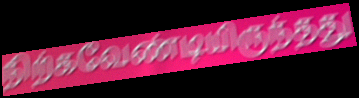
நிற்கவேண்டியிருந்தது